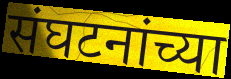
संघटनांच्या